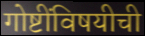
गोष्टींविषयीची